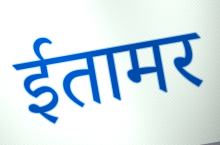
ईतामर